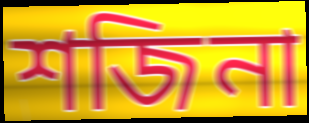
শজিনা